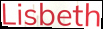
Lisbeth